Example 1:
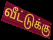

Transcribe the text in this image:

வீட்டுக்கு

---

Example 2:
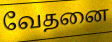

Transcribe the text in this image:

வேதனை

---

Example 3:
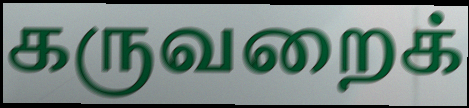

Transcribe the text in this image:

கருவறைக்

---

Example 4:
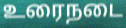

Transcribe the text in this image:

உரைநடை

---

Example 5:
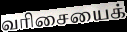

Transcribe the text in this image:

வரிசையைக்